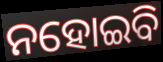
ନହୋଇବି